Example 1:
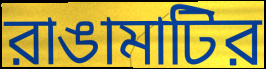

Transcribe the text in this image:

রাঙামাটির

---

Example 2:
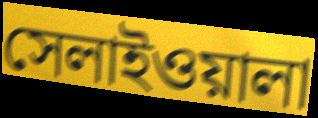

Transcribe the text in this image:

সেলাইওয়ালা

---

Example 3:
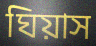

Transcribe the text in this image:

ঘিয়াস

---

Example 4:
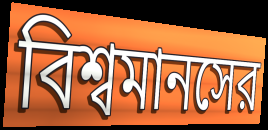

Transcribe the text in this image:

বিশ্বমানসের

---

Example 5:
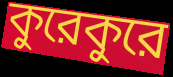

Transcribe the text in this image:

কুরেকুরে